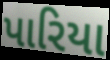
પારિયા